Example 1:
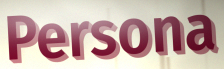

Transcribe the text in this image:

Persona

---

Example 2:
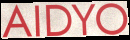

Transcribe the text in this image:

AIDYO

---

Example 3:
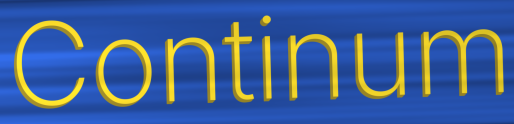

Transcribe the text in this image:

Continum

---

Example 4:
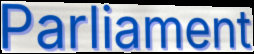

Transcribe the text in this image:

Parliament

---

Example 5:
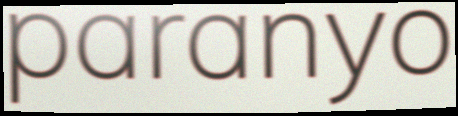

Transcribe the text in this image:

paranyo